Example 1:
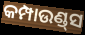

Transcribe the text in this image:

କମ୍ପାଉଣ୍ଡ୍‌ସ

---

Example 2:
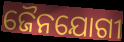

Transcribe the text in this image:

ଜୈନଯୋଗୀ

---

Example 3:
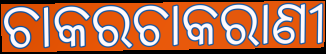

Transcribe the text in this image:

ଚାକରଚାକରାଣୀ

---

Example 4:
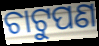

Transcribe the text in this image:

ଚାଟୁପଣ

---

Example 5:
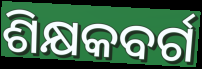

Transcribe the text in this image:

ଶିକ୍ଷକବର୍ଗ